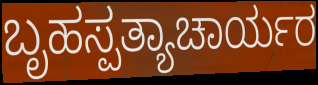
ಬೃಹಸ್ಪತ್ಯಾಚಾರ್ಯರ